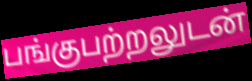
பங்குபற்றலுடன்